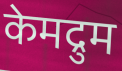
केमद्रुम